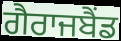
ਗੈਰਾਜਬੈਂਡ